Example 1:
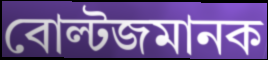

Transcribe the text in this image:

বোল্টজমানক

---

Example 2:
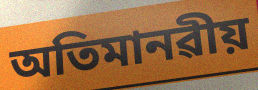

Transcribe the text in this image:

অতিমানৱীয়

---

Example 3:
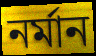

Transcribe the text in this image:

নৰ্মান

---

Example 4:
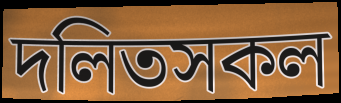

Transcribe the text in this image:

দলিতসকল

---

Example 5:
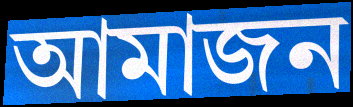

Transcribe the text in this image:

আমাজন